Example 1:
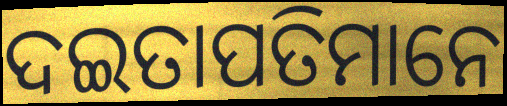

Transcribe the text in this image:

ଦଇତାପତିମାନେ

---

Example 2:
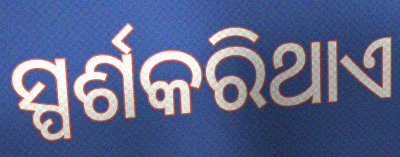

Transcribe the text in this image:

ସ୍ପର୍ଶକରିଥାଏ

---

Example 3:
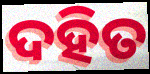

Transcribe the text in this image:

ଦହିତ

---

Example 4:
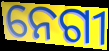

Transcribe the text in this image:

ନେଗୀ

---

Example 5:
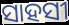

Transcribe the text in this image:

ସାହସୀ